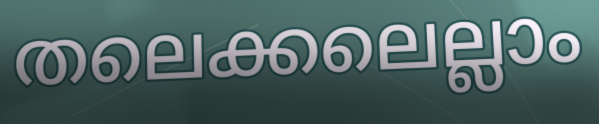
തലെക്കലെല്ലാം